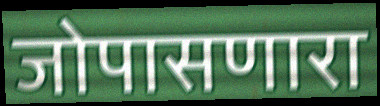
जोपासणारा